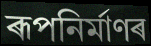
ৰূপনিৰ্মাণৰ